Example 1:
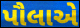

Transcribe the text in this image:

પૌલાએ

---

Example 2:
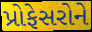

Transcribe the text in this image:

પ્રોફેસરોને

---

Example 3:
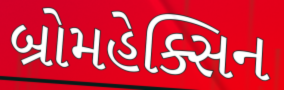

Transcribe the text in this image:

બ્રોમહેક્સિન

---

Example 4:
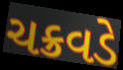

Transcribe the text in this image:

ચક્રવડે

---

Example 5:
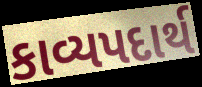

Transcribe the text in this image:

કાવ્યપદાર્થ